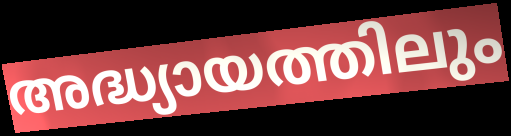
അദ്ധ്യായത്തിലും